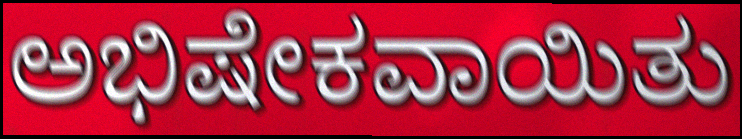
ಅಭಿಷೇಕವಾಯಿತು